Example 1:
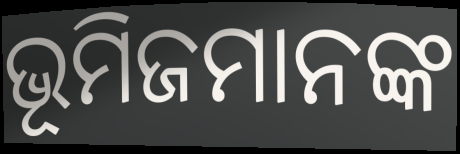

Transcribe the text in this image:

ଭୂମିଜମାନଙ୍କ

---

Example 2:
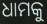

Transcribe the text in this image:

ଧାମକୁ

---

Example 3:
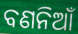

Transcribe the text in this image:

ବଣନିଆଁ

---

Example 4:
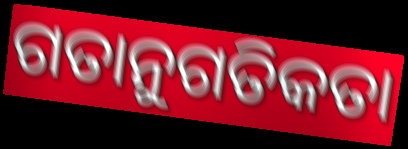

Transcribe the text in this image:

ଗତାନୁଗତିକତା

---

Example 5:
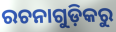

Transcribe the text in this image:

ରଚନାଗୁଡ଼ିକରୁ